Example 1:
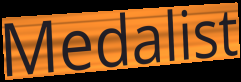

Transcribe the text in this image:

Medalist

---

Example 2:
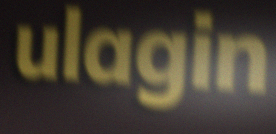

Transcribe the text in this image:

ulagin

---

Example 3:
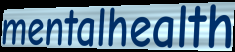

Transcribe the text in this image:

mentalhealth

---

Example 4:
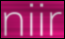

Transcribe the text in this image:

niir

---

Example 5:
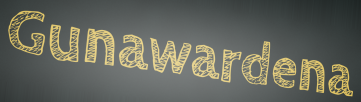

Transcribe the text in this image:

Gunawardena